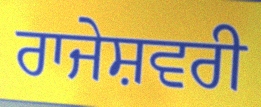
ਰਾਜੇਸ਼ਵਰੀ